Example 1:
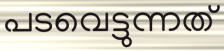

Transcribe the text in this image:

പടവെട്ടുന്നത്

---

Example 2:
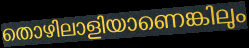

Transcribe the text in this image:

തൊഴിലാളിയാണെങ്കിലും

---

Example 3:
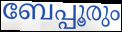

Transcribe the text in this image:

ബേപ്പൂരും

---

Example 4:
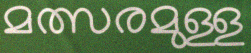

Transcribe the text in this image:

മത്സരമുള്ള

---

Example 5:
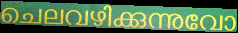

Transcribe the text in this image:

ചെലവഴിക്കുന്നുവോ